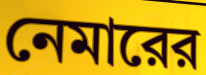
নেমারের